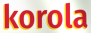
korola